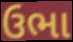
ઉભા